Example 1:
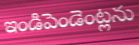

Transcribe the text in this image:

ఇండిపెండెంట్లను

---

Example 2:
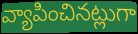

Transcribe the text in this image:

వ్యాపించినట్లుగా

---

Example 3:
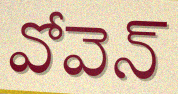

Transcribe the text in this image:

వోవెన్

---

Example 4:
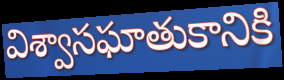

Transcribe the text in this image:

విశ్వాసఘాతుకానికి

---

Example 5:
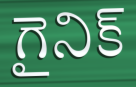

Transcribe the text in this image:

గైనిక్